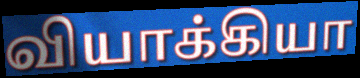
வியாக்கியா